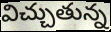
విచ్చుతున్న